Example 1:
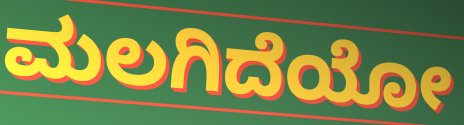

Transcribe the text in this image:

ಮಲಗಿದೆಯೋ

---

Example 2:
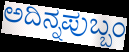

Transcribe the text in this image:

ಅದಿನ್ನಪುಬ್ಬಂ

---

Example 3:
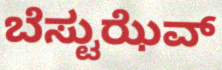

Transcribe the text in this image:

ಬೆಸ್ಟುಝೆವ್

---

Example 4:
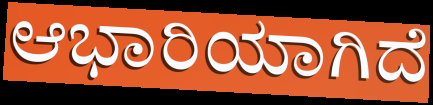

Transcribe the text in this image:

ಆಭಾರಿಯಾಗಿದೆ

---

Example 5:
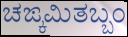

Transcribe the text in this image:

ಚಙ್ಕಮಿತಬ್ಬಂ